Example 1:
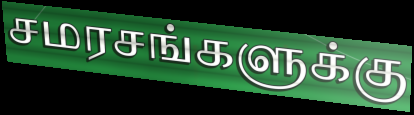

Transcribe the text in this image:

சமரசங்களுக்கு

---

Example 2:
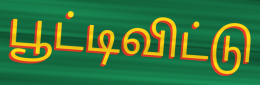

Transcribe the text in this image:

பூட்டிவிட்டு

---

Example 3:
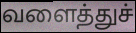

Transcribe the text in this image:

வளைத்துச்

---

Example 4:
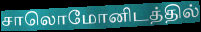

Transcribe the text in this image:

சாலொமோனிடத்தில்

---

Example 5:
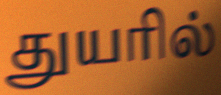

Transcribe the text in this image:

துயரில்